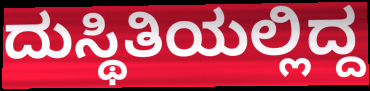
ದುಸ್ಥಿತಿಯಲ್ಲಿದ್ದ